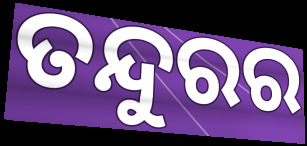
ତନ୍ଦୁରର